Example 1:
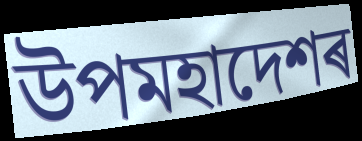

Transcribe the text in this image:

উপমহাদেশৰ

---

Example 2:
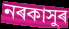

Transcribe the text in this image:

নৰকাসুৰ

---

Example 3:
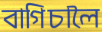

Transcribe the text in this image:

বাগিচালৈ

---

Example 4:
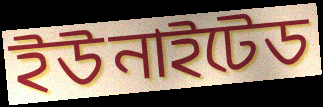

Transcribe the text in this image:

ইউনাইটেড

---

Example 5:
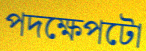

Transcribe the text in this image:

পদক্ষেপটো